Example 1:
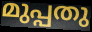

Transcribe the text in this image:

മുപ്പതു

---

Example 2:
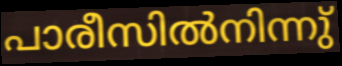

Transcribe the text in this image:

പാരീസിൽനിന്നു്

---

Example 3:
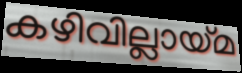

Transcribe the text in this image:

കഴിവില്ലായ്മ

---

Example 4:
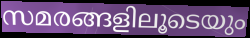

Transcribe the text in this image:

സമരങ്ങളിലൂടെയും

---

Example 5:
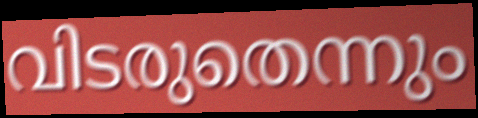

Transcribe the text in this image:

വിടരുതെന്നും